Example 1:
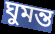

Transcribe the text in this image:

ঘুমন্ত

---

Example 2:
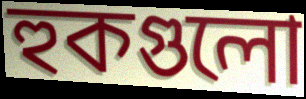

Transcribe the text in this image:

হুকগুলো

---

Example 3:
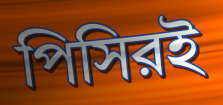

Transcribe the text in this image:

পিসিরই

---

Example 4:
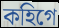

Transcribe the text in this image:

কহিগে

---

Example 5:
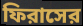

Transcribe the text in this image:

ফিরাসের